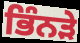
ਭਿੰਨੜੇ